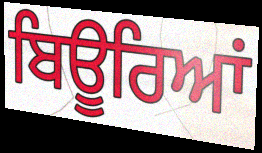
ਬਿਊਰਿਆਂ